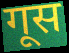
गूस